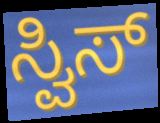
ಸ್ವಿಸ್